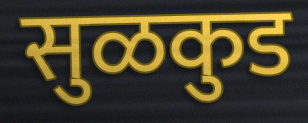
सुळकुड